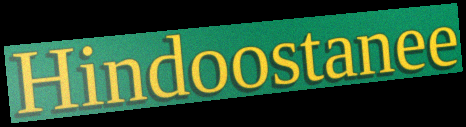
Hindoostanee